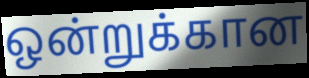
ஒன்றுக்கான